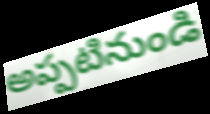
అప్పటినుండి